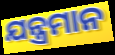
ଯନ୍ତ୍ରମାନ